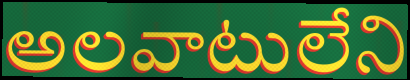
అలవాటులేని